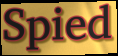
Spied